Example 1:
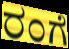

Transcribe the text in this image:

ರಂಗೆ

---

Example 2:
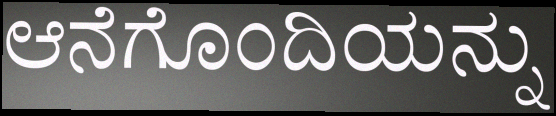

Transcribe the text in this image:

ಆನೆಗೊಂದಿಯನ್ನು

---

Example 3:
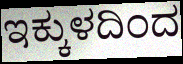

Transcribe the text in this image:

ಇಕ್ಕುಳದಿಂದ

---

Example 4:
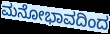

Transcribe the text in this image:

ಮನೋಭಾವದಿಂದ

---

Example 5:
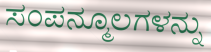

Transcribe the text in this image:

ಸಂಪನ್ಮೂಲಗಳನ್ನು